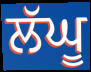
ਲੱਘੂ